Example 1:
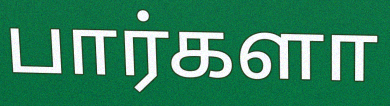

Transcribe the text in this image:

பார்களா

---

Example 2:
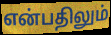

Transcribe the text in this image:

என்பதிலும்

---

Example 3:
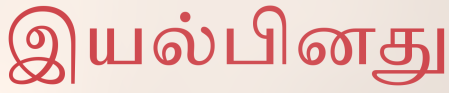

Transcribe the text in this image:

இயல்பினது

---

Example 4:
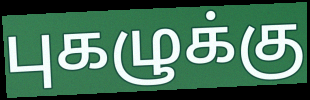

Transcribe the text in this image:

புகழுக்கு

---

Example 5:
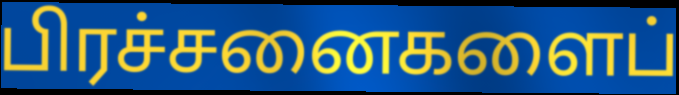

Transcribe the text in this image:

பிரச்சனைகளைப்